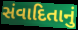
સંવાદિતાનું